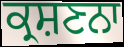
ਕ੍ਰਸ਼ਣਨਾ